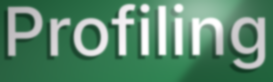
Profiling